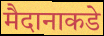
मैदानाकडे